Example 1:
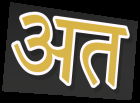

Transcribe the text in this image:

अत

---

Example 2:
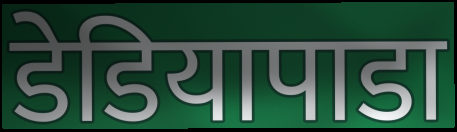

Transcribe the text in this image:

डेडियापाडा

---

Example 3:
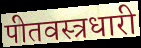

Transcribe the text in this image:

पीतवस्त्रधारी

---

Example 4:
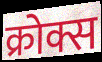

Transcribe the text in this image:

क्रोक्स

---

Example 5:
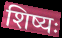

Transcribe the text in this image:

शिष्यः